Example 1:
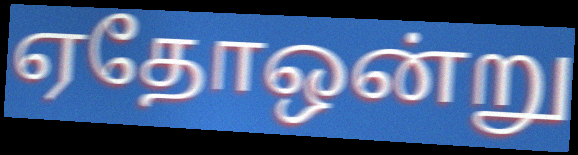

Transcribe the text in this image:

ஏதோஒன்று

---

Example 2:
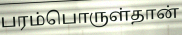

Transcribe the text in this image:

பரம்பொருள்தான்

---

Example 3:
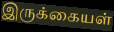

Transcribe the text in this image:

இருக்கையள்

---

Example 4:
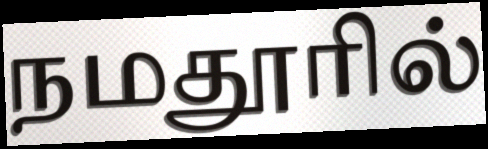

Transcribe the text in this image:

நமதூரில்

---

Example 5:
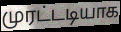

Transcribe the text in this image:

முரட்டடியாக